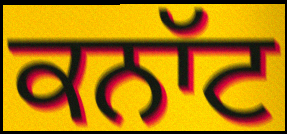
ਕਨਾੱਟ